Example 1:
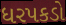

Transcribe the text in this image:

ધરપકડો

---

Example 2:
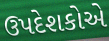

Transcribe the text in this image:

ઉપદેશકોએ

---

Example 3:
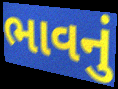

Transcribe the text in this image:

ભાવનું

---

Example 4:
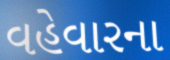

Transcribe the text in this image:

વહેવારના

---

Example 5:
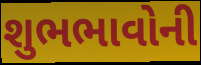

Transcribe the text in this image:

શુભભાવોની